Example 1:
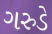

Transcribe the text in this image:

ગરુડે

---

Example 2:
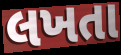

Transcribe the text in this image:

લખતા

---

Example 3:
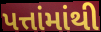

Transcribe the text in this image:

પત્તાંમાંથી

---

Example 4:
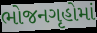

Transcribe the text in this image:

ભોજનગૃહોમાં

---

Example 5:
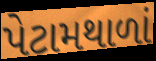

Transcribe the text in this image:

પેટામથાળાં